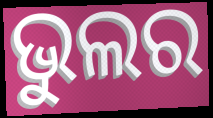
ଭୁଲର